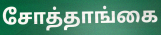
சோத்தாங்கை